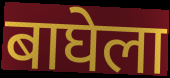
बाघेला